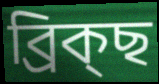
ব্ৰিক্‌ছ